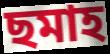
ছমাহ